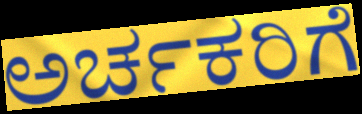
ಅರ್ಚಕರಿಗೆ